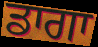
ਡਾਗਾ